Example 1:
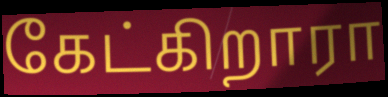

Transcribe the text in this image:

கேட்கிறாரா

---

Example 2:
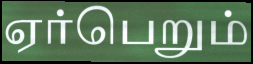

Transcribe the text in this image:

ஏர்பெறும்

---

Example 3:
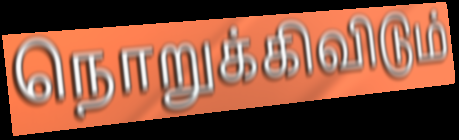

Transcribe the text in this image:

நொறுக்கிவிடும்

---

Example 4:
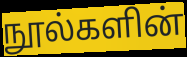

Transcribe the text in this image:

நூல்களின்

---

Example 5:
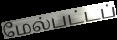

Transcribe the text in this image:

மேல்பட்டப்